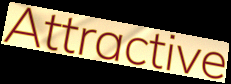
Attractive